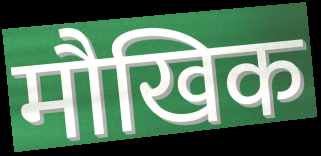
मौखिक